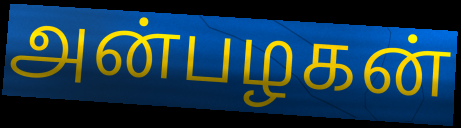
அன்பழகன்